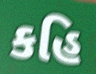
કહિ